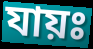
যায়ঃ